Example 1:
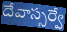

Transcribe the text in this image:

దేవాస్సర్వే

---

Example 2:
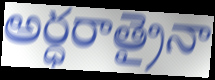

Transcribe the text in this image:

అర్ధరాత్రైనా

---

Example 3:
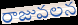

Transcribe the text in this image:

రాజువలన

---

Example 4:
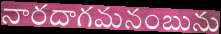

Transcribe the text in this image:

నారదాగమనంబును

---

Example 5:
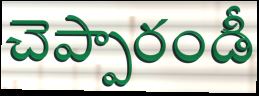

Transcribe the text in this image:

చెప్పారండీ